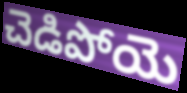
చెడిపోయె